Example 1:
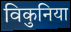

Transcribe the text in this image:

विकुनिया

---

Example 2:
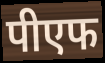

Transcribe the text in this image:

पीएफ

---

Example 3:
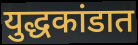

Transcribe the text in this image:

युद्धकांडात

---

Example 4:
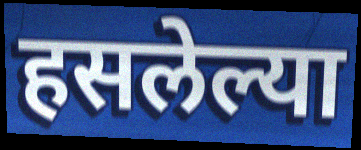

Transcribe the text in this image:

हसलेल्या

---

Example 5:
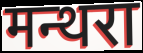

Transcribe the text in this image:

मन्थरा